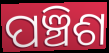
ପଞ୍ଚିଶ